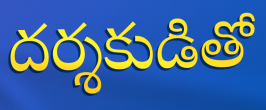
దర్శకుడితో